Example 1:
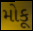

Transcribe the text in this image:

મોકૂ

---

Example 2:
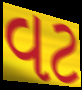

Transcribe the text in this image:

વટ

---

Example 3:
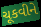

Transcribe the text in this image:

ચૂકવીને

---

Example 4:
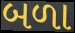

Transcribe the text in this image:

બળા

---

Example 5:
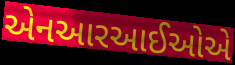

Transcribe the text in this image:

એનઆરઆઈઓએ